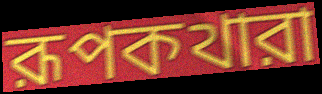
রূপকথারা